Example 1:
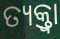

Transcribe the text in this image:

ତ୍ୟକ୍ତ୍ୱା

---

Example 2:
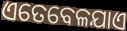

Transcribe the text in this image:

ଏତେବେଳଯାଏ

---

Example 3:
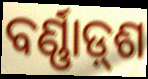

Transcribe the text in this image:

ବର୍ଣ୍ଣାଡ଼୍‌ଶ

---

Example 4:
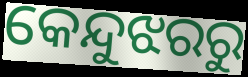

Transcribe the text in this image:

କେନ୍ଦୁଝରରୁ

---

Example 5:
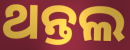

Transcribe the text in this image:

ଥନ୍ତଲ